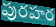
పురహర